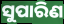
ସୁପାରିଣ